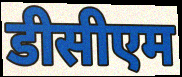
डीसीएम